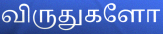
விருதுகளோ